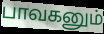
பாவகனும்